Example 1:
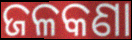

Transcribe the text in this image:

ଜଳକଣା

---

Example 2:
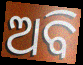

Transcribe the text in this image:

ଅବି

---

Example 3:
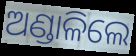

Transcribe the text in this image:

ଅଣ୍ଡାଳିଲେ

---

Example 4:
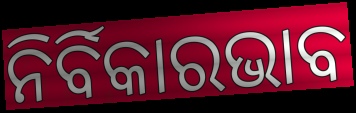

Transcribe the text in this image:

ନିର୍ବିକାରଭାବ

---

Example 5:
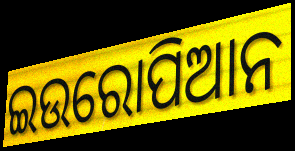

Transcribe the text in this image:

ଇଉରୋପିଆନ